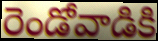
రెండోవాడికి